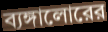
ব্যঙ্গালোরের